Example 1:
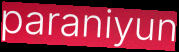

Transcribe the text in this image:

paraniyun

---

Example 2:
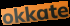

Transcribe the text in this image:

okkate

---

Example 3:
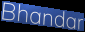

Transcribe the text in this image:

Bhandar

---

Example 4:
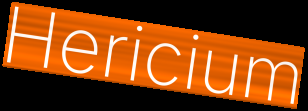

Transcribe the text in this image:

Hericium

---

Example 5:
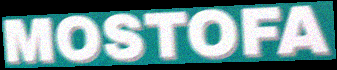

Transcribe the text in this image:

MOSTOFA